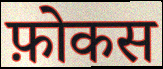
फ़ोकस